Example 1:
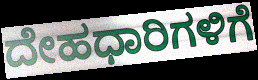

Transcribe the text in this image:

ದೇಹಧಾರಿಗಳಿಗೆ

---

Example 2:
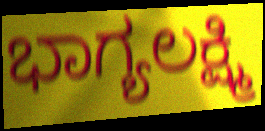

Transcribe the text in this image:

ಭಾಗ್ಯಲಕ್ಷ್ಮಿ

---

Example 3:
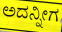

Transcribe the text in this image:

ಅದನ್ನೀಗ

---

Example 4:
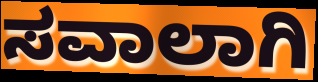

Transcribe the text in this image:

ಸವಾಲಾಗಿ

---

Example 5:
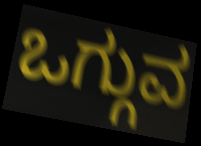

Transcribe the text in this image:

ಒಗ್ಗುವ